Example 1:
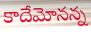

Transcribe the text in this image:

కాదేమోనన్న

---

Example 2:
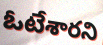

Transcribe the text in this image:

ఓటేశారని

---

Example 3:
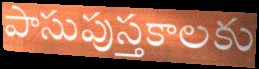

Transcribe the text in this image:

పాసుపుస్తకాలకు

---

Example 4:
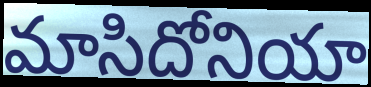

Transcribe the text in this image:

మాసిదోనియా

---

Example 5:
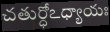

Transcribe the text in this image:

చతుర్ధోఽధ్యాయః